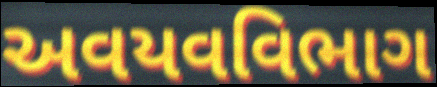
અવયવવિભાગ